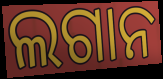
ଲଗାନ